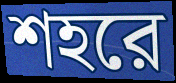
শহরে